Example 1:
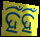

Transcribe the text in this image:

ହିଁହିଁ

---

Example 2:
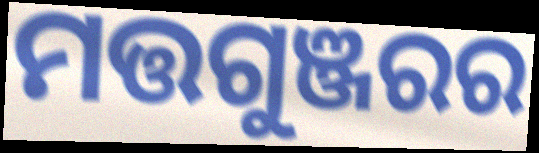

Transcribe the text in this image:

ମତ୍ତଗୁଞ୍ଜରର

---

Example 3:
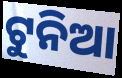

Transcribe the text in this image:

ଟୁନିଆ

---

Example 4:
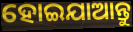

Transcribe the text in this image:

ହୋଇଯାଆନ୍ତୁ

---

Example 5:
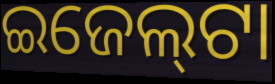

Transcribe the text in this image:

ଇଜେଲ୍‍ଟା